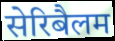
सेरिबैलम